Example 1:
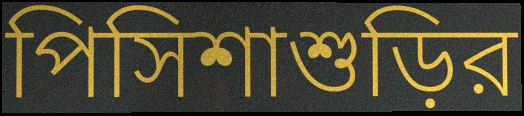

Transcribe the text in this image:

পিসিশাশুড়ির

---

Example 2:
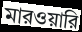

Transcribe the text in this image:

মারওয়ারি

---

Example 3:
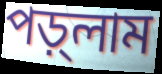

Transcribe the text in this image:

পড়্‌লাম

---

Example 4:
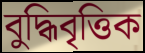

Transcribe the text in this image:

বুদ্ধিবৃত্তিক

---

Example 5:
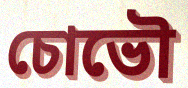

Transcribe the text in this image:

চোভৌ